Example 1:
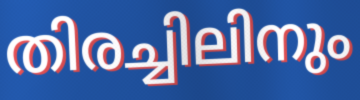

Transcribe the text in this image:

തിരച്ചിലിനും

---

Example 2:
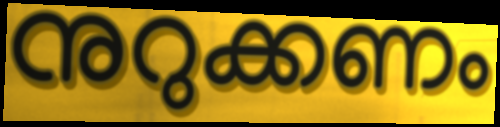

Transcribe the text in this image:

നുറുക്കണം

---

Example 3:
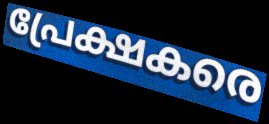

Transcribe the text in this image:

പ്രേക്ഷകരെ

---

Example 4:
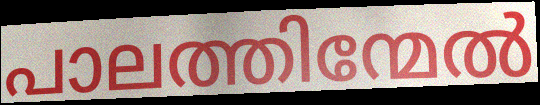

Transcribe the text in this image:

പാലത്തിന്മേൽ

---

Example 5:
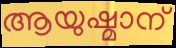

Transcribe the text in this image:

ആയുഷ്മാന്